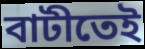
বাটীতেই